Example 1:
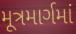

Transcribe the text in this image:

મૂત્રમાર્ગમાં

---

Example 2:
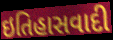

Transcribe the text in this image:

ઇતિહાસવાદી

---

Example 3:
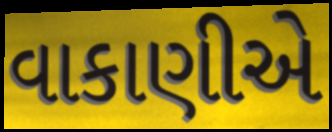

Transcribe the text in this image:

વાકાણીએ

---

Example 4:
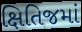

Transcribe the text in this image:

ક્ષિતિજમાં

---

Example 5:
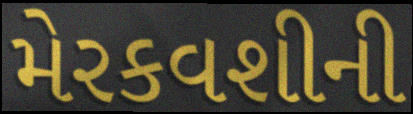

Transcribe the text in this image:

મેરકવશીની